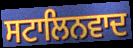
ਸਟਾਲਿਨਵਾਦ